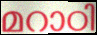
മറാഠി